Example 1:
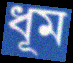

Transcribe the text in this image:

ধূম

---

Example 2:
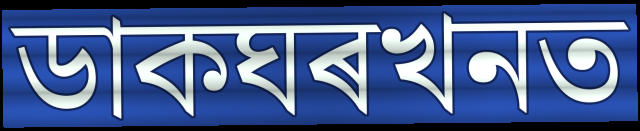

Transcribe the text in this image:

ডাকঘৰখনত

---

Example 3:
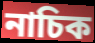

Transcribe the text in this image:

নাচিক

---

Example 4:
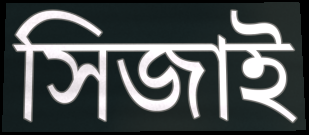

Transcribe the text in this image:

সিজাই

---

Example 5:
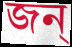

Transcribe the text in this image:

জন্